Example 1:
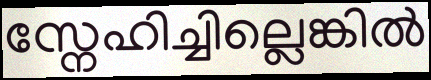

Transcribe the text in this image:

സ്നേഹിച്ചില്ലെങ്കിൽ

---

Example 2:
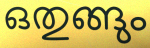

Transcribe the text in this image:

ഒതുങ്ങും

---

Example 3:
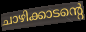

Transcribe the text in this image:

ചാഴിക്കാടന്റെ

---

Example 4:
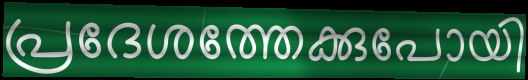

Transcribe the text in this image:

പ്രദേശത്തേക്കുപോയി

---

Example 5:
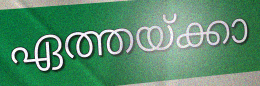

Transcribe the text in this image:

ഏത്തയ്ക്കാ